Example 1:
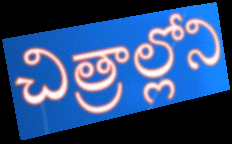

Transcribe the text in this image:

చిత్రాల్లోని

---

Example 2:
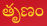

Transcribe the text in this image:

తృణం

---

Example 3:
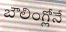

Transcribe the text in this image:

బౌలింగ్లోనే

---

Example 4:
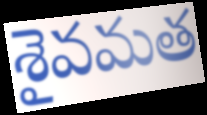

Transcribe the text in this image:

శైవమత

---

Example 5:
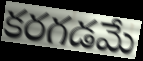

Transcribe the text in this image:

కరగడమే